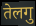
तेलगु